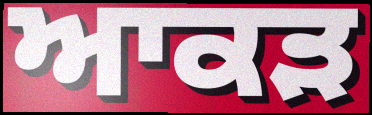
ਆਕੜ